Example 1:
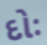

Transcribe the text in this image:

દોઃ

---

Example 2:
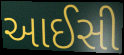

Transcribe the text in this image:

આઈસી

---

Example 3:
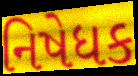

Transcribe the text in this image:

નિષેધક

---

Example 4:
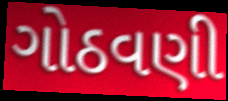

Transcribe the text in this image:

ગોઠવણી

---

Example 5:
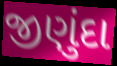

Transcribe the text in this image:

જીણુંદા